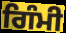
ਗਿੰਮੀ